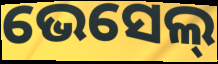
ଭେସେଲ୍